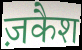
ज़कैश